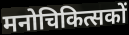
मनोचिकित्सकों